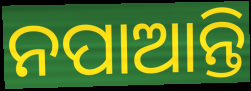
ନପାଆନ୍ତି